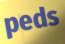
peds